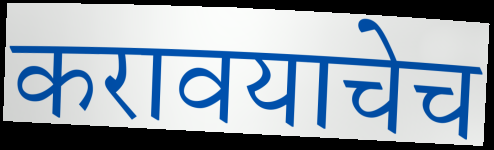
करावयाचेच